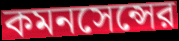
কমনসেন্সের